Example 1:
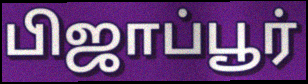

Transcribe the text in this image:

பிஜாப்பூர்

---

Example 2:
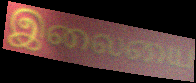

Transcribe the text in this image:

இலையை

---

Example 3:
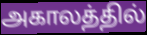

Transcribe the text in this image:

அகாலத்தில்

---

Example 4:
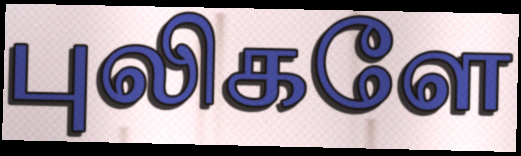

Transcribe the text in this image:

புலிகளே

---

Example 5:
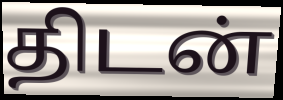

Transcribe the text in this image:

திடன்